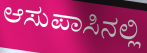
ಆಸುಪಾಸಿನಲ್ಲಿ